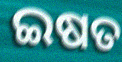
ଇଷତ